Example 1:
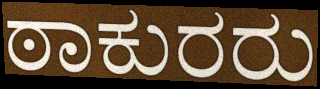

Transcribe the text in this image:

ಠಾಕುರರು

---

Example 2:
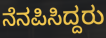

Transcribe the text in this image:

ನೆನಪಿಸಿದ್ದರು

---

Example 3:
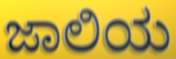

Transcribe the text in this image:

ಜಾಲಿಯ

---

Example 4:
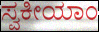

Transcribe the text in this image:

ಸ್ವಕೀಯಾಂ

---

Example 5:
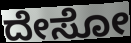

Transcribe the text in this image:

ದೇಸೋ